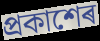
প্ৰকাশেৰ